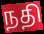
நதி